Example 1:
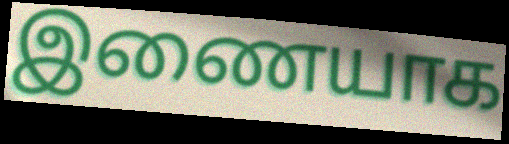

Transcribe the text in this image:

இணையாக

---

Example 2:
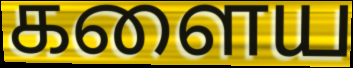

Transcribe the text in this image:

களைய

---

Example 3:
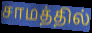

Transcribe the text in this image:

சாமத்தில்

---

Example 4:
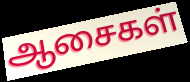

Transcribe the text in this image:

ஆசைகள்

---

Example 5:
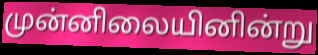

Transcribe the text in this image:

முன்னிலையினின்று